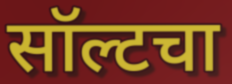
सॉल्टचा